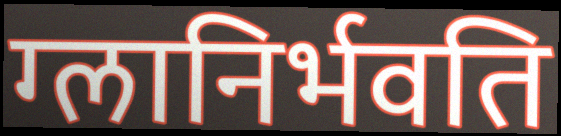
ग्लानिर्भवति